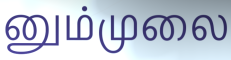
னும்முலை